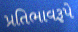
પ્રતિભાવરૂપે